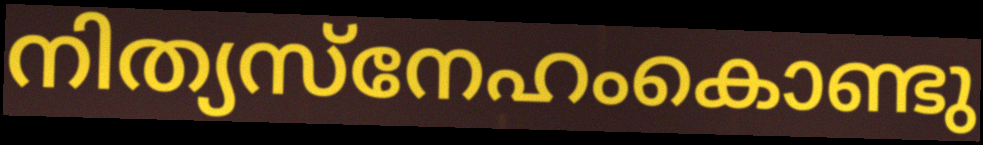
നിത്യസ്നേഹംകൊണ്ടു